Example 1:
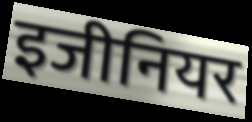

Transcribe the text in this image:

इजीनियर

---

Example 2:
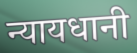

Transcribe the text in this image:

न्यायधानी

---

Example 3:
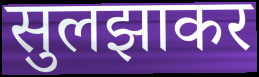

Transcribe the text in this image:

सुलझाकर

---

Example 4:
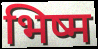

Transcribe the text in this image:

भिष्म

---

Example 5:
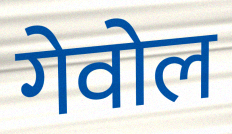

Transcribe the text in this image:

गेवोल